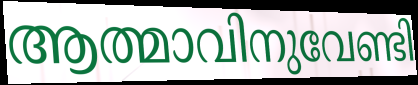
ആത്മാവിനുവേണ്ടി